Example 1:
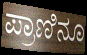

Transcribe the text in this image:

ಪ್ರಾಣಿನೂ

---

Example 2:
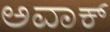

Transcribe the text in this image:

ಅವಾಕ್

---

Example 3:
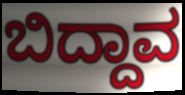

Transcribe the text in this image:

ಬಿದ್ದಾವ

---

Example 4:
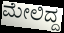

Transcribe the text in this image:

ಮೇಲಿದ್ದ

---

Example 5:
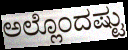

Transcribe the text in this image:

ಅಲ್ಲೊಂದಷ್ಟು